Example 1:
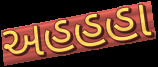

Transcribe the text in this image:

અહહહા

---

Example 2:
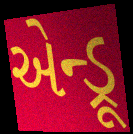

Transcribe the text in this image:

એન્ડ્રૂ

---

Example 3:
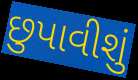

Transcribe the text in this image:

છુપાવીશું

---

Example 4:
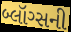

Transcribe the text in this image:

બ્લૉગ્સની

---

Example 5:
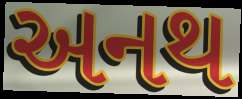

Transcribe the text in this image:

અનથ